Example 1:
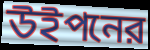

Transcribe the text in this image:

উইপনের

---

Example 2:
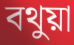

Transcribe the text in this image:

বথুয়া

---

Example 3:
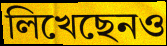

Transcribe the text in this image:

লিখেছেনও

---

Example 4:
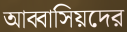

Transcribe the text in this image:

আব্বাসিয়দের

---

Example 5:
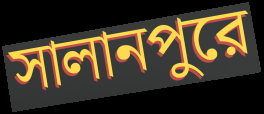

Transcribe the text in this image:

সালানপুরে